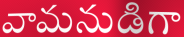
వామనుడిగా